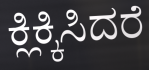
ಕ್ಲಿಕ್ಕಿಸಿದರೆ